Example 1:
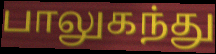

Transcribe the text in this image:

பாலுகந்து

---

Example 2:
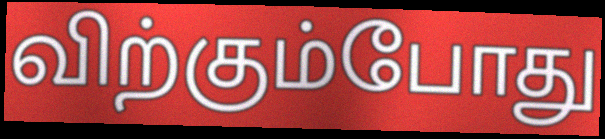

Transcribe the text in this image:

விற்கும்போது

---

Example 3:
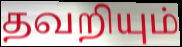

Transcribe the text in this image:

தவறியும்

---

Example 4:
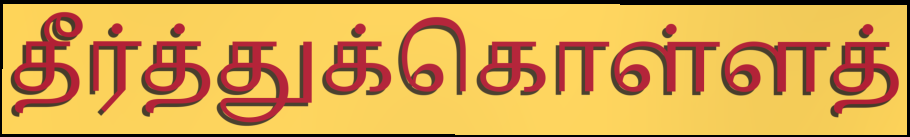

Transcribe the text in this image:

தீர்த்துக்கொள்ளத்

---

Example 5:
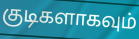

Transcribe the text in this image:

குடிகளாகவும்